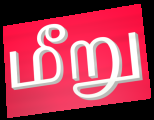
மீறு